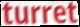
turret